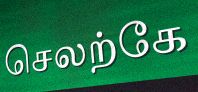
செலற்கே